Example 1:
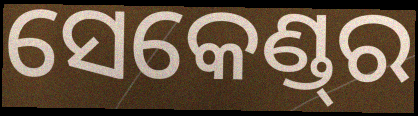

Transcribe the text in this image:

ସେକେଣ୍ଡ୍‌ର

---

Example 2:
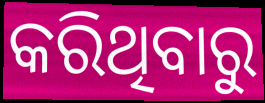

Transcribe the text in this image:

କରିଥିବାରୁ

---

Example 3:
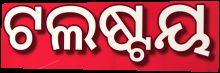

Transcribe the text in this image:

ଟଲଷ୍ଟୟ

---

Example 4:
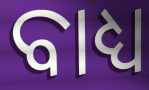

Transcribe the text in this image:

ବାଧ୍ୟ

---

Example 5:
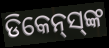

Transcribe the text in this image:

ଡିକେନ୍‌ସ୍‌ଙ୍କ